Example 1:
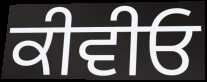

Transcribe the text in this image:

ਕੀਵੀਓ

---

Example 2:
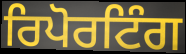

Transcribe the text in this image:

ਰਿਪੋਰਟਿੰਗ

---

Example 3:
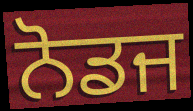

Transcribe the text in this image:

ਨੋਡਜ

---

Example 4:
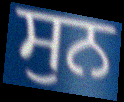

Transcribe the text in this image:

ਸੁਨ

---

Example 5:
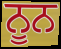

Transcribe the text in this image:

ਨੂਨ